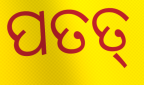
ପତତ୍